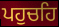
ਪਹੁਚਹਿ